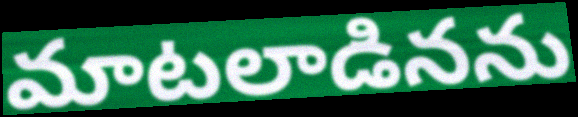
మాటలాడినను